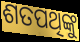
ଶତପଥିଙ୍କୁ